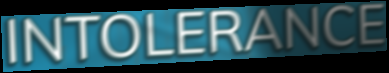
INTOLERANCE